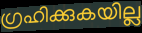
ഗ്രഹിക്കുകയില്ല